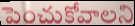
పెంచుకోవాలని